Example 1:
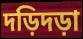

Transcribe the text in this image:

দড়িদড়া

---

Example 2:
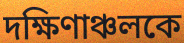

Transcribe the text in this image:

দক্ষিণাঞ্চলকে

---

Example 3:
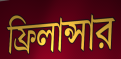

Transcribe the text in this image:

ফ্রিলান্সার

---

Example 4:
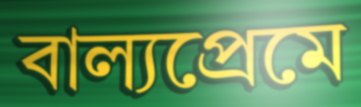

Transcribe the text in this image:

বাল্যপ্রেমে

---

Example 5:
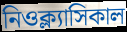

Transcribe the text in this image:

নিওক্ল্যাসিকাল